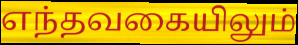
எந்தவகையிலும்